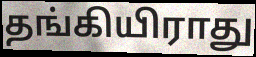
தங்கியிராது